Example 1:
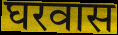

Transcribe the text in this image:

घरवास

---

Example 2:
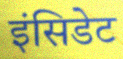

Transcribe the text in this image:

इंसिडेट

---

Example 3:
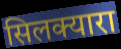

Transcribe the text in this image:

सिलक्यारा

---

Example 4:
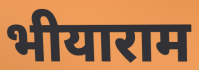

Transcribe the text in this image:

भीयाराम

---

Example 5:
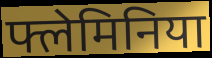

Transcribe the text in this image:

फ्लेमिनिया